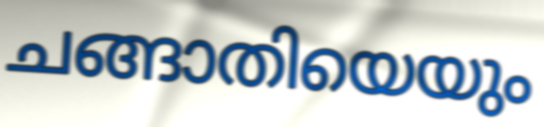
ചങ്ങാതിയെയും